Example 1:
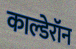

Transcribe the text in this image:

काल्डेरॉन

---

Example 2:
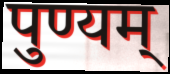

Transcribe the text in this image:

पुण्यम्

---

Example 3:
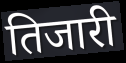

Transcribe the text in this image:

तिजारी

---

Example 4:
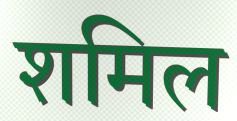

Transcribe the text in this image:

शमिल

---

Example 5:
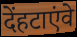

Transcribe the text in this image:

देंहटाएंवे